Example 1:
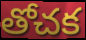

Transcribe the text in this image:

తోచక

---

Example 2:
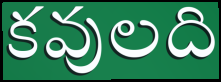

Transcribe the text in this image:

కవులది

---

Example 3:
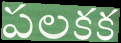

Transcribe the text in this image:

పలకక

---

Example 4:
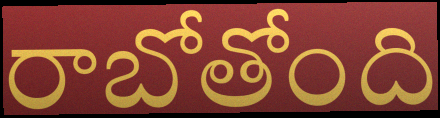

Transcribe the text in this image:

రాబోతోంది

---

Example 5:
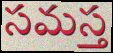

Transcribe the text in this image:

సమస్త